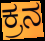
ಕ್ರನ